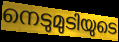
നെടുമുടിയുടെ